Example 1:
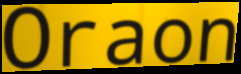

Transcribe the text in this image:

Oraon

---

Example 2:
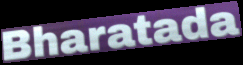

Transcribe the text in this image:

Bharatada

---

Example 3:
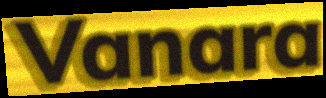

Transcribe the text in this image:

Vanara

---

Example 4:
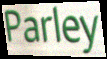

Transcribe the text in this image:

Parley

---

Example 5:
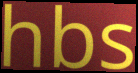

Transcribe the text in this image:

hbs